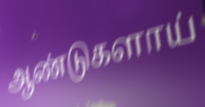
ஆண்டுகளாய்